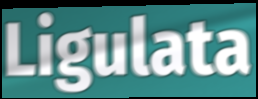
Ligulata